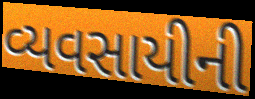
વ્યવસાયીની